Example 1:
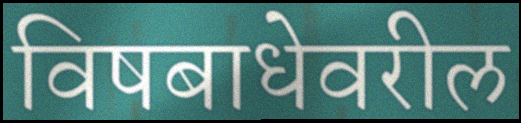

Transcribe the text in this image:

विषबाधेवरील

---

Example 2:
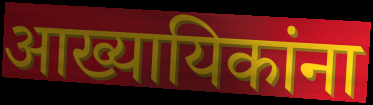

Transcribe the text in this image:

आख्यायिकांना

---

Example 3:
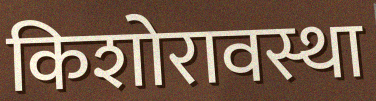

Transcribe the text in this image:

किशोरावस्था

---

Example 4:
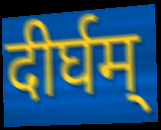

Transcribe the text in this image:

दीर्घम्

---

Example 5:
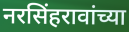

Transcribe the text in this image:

नरसिंहरावांच्या